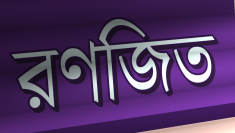
রণজিত